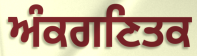
ਅੰਕਗਣਿਤਕ